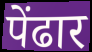
पेंढार